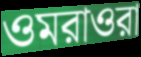
ওমরাওরা